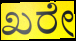
ಖರೇ